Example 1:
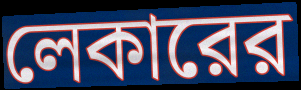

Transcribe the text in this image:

লেকারের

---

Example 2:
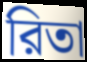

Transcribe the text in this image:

রিতা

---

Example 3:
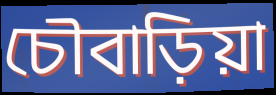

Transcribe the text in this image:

চৌবাড়িয়া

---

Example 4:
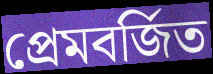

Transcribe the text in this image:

প্রেমবর্জিত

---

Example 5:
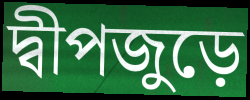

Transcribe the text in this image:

দ্বীপজুড়ে